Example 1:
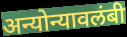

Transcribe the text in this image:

अन्योन्यावलंबी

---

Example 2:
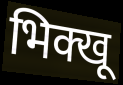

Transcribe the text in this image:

भिक्‍खू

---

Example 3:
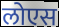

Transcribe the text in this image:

लोएस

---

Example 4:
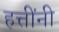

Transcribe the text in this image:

हत्तींनी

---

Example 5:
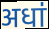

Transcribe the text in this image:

अधा॑